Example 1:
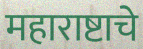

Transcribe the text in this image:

महाराष्टाचे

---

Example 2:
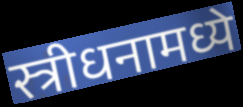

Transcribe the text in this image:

स्त्रीधनामध्ये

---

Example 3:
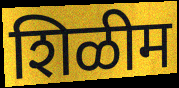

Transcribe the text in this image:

शिळीम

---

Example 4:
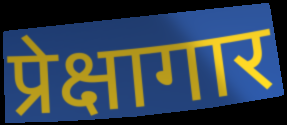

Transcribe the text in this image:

प्रेक्षागार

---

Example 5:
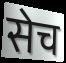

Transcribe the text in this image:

सेच